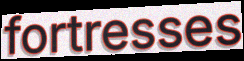
fortresses